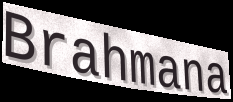
Brahmana